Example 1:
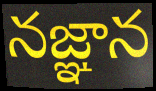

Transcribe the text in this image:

నజ్ఞాన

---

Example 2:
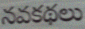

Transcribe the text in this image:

నవకథలు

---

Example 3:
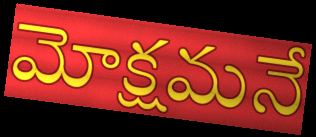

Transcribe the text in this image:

మోక్షమనే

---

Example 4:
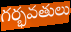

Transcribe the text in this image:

గర్భవతులు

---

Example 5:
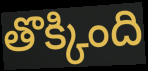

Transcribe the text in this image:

తొక్కింది